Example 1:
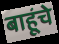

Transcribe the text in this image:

बाहूंचे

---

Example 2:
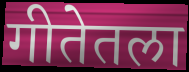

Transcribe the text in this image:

गीतेतला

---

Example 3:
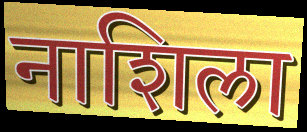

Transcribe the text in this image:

नाशिला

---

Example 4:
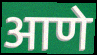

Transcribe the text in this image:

आणे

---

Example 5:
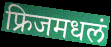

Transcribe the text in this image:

फ्रिजमधलं